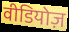
वीडियोज़